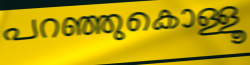
പറഞ്ഞുകൊള്ളൂ